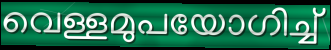
വെള്ളമുപയോഗിച്ച്